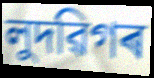
লুদৱিগৰ